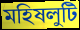
মহিষলুটি